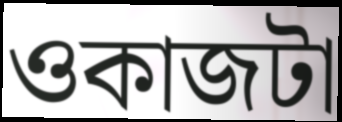
ওকাজটা